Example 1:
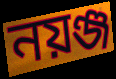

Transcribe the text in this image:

নয়ঞ্জ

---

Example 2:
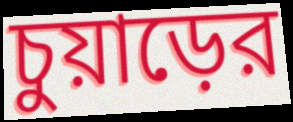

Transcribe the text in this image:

চুয়াড়ের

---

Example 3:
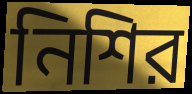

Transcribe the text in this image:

নিশির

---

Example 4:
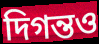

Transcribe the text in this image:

দিগন্তও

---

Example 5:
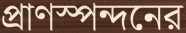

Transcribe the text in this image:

প্রাণস্পন্দনের